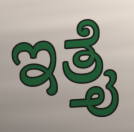
ಇತ್ತೈ